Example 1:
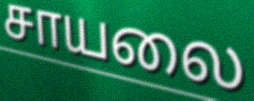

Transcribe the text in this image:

சாயலை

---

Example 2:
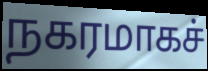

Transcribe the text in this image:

நகரமாகச்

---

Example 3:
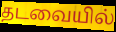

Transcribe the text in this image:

தடவையில்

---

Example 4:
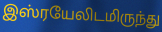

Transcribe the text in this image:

இஸ்ரயேலிடமிருந்து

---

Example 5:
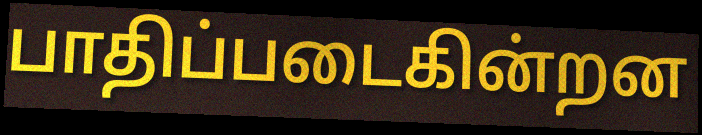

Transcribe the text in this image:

பாதிப்படைகின்றன